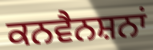
ਕਨਵੈਨਸ਼ਨਾਂ